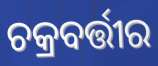
ଚକ୍ରବର୍ତ୍ତୀର